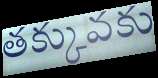
తక్కువకు